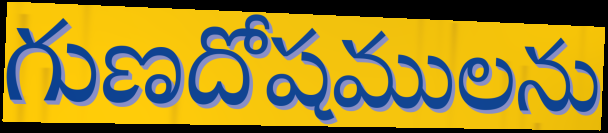
గుణదోషములను